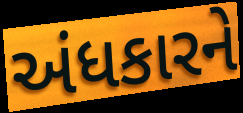
અંધકારને